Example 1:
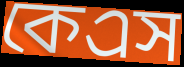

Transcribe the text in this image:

কেএস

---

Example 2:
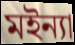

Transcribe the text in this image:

মইন্যা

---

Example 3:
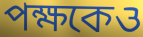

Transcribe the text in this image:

পক্ষকেও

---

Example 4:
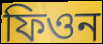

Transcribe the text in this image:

ফিওন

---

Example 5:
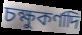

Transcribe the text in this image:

চক্ষুকর্ণাদি